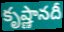
కృష్ణానదీ